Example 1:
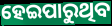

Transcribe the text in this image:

ହେଇପାରୁଥିବ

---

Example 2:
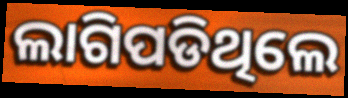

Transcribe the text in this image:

ଲାଗିପଡିଥିଲେ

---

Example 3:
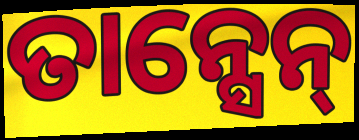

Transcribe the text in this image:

ତାନ୍ସେନ୍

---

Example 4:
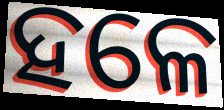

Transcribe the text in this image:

ହଳେ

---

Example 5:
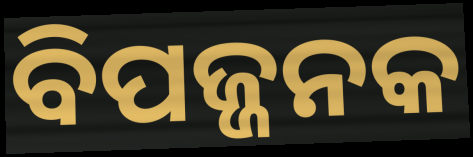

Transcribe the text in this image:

ବିପଜ୍ଜନକ